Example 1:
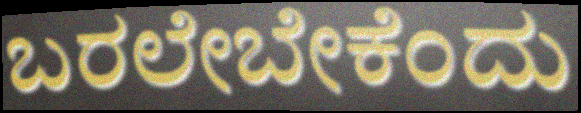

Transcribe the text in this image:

ಬರಲೇಬೇಕೆಂದು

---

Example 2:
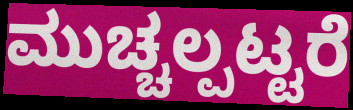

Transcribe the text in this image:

ಮುಚ್ಚಲ್ಪಟ್ಟರೆ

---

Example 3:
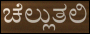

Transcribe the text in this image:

ಚೆಲ್ಲುತಲಿ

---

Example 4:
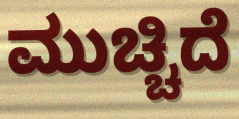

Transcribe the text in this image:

ಮುಚ್ಚಿದೆ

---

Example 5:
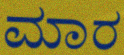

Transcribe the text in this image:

ಮಾರ